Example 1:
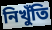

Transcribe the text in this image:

নিখুঁতি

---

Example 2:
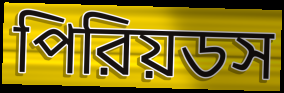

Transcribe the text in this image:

পিরিয়ডস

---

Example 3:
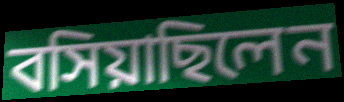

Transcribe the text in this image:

বসিয়াছিলেন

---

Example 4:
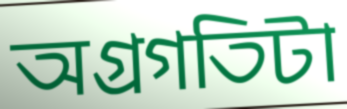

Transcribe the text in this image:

অগ্রগতিটা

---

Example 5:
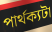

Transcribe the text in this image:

পার্থক্যটা